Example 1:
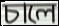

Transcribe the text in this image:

চালে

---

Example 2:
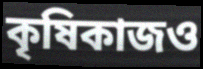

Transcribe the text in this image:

কৃষিকাজও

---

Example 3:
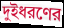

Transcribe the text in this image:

দুইধরণের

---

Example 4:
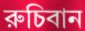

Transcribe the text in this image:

রুচিবান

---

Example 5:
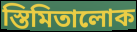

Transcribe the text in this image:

স্তিমিতালোক